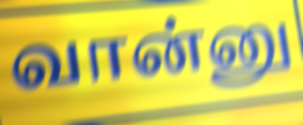
வான்னு